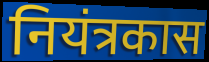
नियंत्रकास